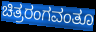
ಚಿತ್ರರಂಗವಂತೂ